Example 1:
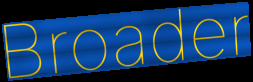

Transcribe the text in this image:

Broader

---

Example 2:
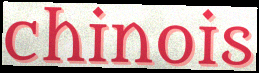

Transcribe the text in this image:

chinois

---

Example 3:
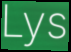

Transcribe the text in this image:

Lys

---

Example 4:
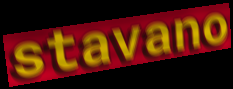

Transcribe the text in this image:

stavano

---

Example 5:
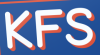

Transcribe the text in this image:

KFS